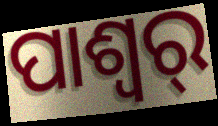
ପାଶ୍ୱର୍